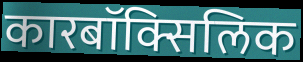
कारबॉक्सिलिक